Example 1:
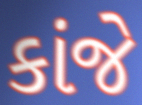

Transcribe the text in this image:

કાંજે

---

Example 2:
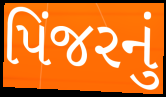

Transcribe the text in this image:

પિંજરનું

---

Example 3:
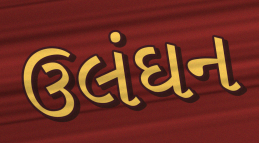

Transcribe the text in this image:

ઉલંઘન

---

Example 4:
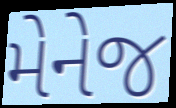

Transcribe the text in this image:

મેનેજ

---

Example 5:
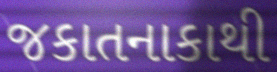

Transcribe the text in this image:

જકાતનાકાથી